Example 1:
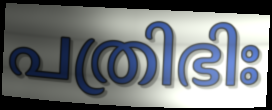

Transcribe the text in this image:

പത്രിഭിഃ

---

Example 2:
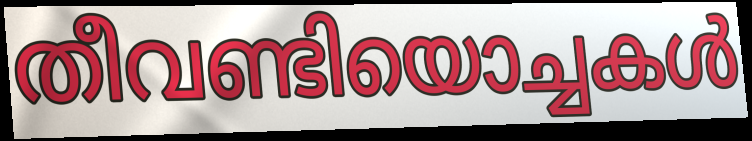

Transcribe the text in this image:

തീവണ്ടിയൊച്ചകൾ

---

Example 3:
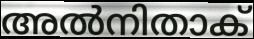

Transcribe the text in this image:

അൽനിതാക്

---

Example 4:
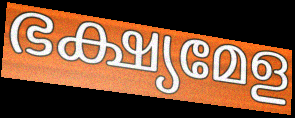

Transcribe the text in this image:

ഭക്ഷ്യമേള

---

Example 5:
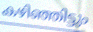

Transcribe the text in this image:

കഴിഞ്ഞിട്ടും